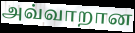
அவ்வாறான